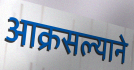
आक्रसल्याने